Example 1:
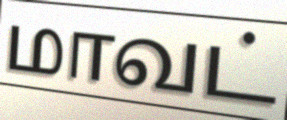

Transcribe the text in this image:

மாவட்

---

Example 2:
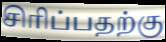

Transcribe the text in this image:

சிரிப்பதற்கு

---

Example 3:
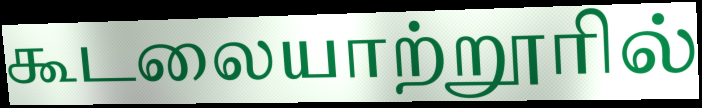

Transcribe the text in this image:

கூடலையாற்றூரில்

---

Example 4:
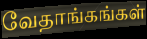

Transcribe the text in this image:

வேதாங்கங்கள்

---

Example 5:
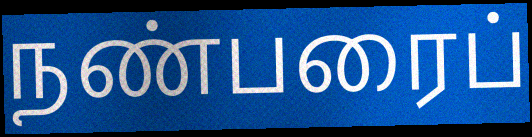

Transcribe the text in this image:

நண்பரைப்